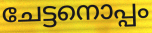
ചേട്ടനൊപ്പം